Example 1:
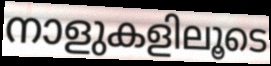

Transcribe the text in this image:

നാളുകളിലൂടെ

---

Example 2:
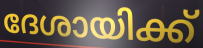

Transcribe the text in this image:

ദേശായിക്ക്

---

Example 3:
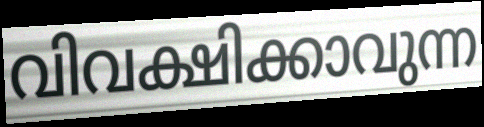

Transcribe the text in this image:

വിവക്ഷിക്കാവുന്ന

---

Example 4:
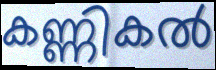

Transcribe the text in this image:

കണ്ണികൽ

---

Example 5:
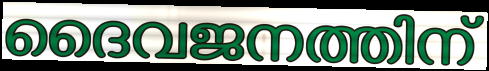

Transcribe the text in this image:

ദൈവജനത്തിന്